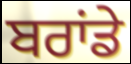
ਬਰਾਂਡੇ